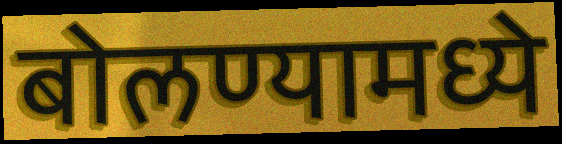
बोलण्यामध्ये